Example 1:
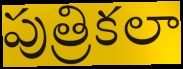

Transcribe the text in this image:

పుత్రికలా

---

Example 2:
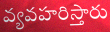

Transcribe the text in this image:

వ్యవహరిస్తారు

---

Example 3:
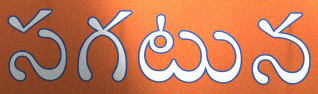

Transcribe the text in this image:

సగటున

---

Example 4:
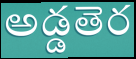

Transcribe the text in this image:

అడ్డతెర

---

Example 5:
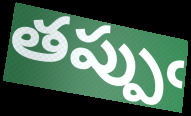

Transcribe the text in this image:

తప్పుఁ